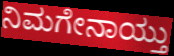
ನಿಮಗೇನಾಯ್ತು